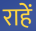
राहें